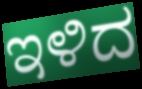
ಇಳಿದ